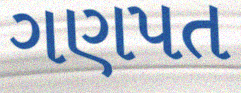
ગણપત